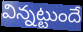
విన్నట్టుందే